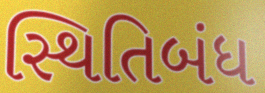
સ્થિતિબંધ